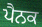
ਪੈਨਕ